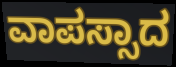
ವಾಪಸ್ಸಾದ